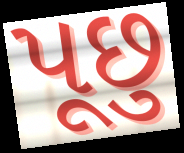
પૂછુ